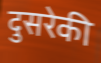
दुसरेकी